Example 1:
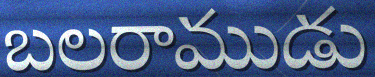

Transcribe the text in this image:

బలరాముడు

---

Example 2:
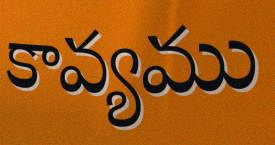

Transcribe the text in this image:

కావ్యము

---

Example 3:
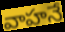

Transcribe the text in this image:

వాహనే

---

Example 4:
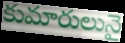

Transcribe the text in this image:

కుమారులునై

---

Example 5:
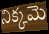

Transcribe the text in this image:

నిక్కమె